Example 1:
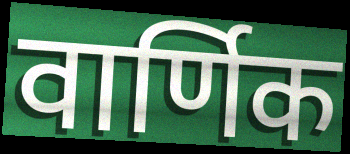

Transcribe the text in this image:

वार्णिक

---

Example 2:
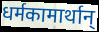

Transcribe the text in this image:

धर्मकामार्थान्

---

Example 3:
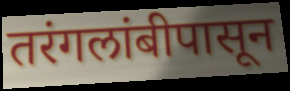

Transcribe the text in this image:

तरंगलांबीपासून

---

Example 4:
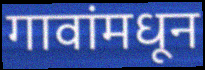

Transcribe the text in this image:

गावांमधून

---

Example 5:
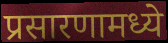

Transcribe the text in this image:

प्रसारणामध्ये